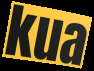
kua